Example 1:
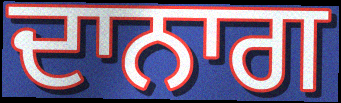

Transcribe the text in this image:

ਦਾਨਾਗ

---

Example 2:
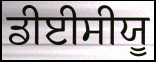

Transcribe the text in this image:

ਡੀਈਸੀਯੂ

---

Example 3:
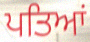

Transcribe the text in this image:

ਪਤਿਆਂ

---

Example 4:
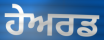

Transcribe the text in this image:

ਹੇਅਰਡ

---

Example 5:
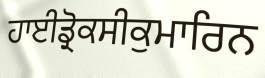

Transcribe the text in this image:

ਹਾਈਡ੍ਰੋਕਸੀਕੁਮਾਰਿਨ